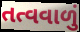
તત્વવાળું